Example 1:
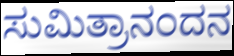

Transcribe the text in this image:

ಸುಮಿತ್ರಾನಂದನ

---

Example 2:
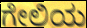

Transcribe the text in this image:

ಗೇಲಿಯ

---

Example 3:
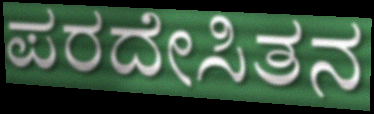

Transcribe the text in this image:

ಪರದೇಸಿತನ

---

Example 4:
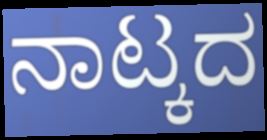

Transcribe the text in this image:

ನಾಟ್ಕದ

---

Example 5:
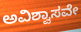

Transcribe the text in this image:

ಅವಿಶ್ವಾಸವೇ